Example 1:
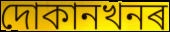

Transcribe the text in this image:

দোকানখনৰ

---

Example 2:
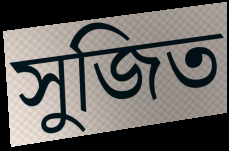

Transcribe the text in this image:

সুজিত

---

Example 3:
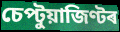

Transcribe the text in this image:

চেপ্টুয়াজিণ্টৰ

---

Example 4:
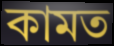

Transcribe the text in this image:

কামত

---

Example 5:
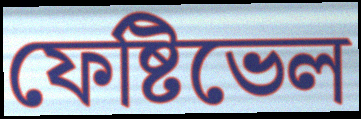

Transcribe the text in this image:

ফেষ্টিভেল